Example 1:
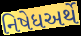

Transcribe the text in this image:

નિષેધઅર્થે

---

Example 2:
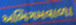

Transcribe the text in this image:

અભિગમવાળા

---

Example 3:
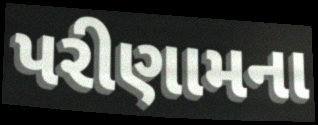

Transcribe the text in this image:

પરીણામના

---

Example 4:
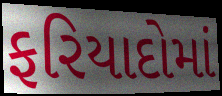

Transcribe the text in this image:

ફરિયાદોમાં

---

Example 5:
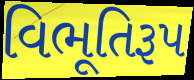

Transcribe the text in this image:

વિભૂતિરૂપ